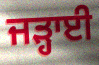
ਜੜ੍ਹਾਈ